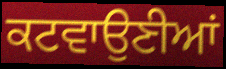
ਕਟਵਾਉਣੀਆਂ